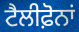
ਟੈਲੀਫ਼ੋਨਾਂ